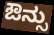
ಔನ್ಸು